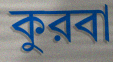
কুরবা